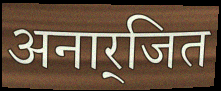
अनार्जित